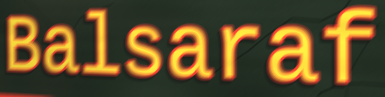
Balsaraf